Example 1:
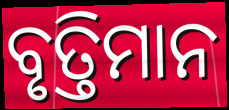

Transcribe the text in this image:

ବୃତ୍ତିମାନ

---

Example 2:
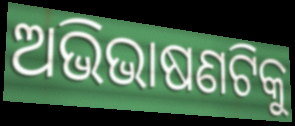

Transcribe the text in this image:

ଅଭିଭାଷଣଟିକୁ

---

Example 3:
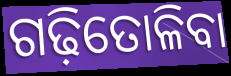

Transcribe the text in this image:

ଗଢ଼ିତୋଳିବା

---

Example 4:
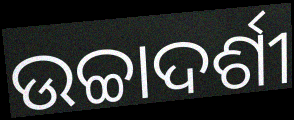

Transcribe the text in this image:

ଉଚ୍ଚାଦର୍ଶୀ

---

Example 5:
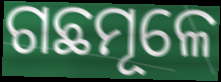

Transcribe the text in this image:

ଗଛମୂଳେ